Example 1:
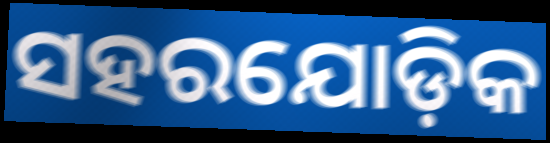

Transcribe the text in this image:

ସହରଯୋଡ଼ିକ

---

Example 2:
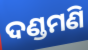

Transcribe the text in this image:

ଦଣ୍ଡମଣି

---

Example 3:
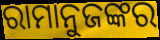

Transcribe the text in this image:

ରାମାନୁଜଙ୍କର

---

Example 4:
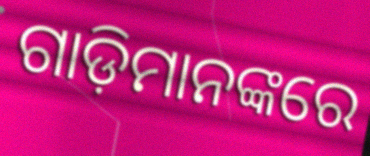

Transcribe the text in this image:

ଗାଡ଼ିମାନଙ୍କରେ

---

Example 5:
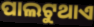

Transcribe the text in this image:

ପାଲଟୁଥାଏ